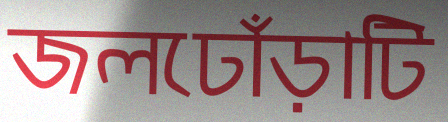
জলঢোঁড়াটি